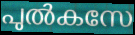
പുൽകസേ